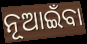
ନୂଆଇଁବା